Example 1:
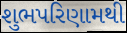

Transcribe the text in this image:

શુભપરિણામથી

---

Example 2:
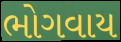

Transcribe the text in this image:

ભોગવાય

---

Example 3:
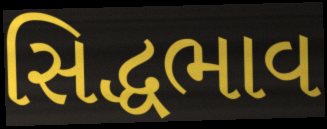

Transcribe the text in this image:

સિદ્ધભાવ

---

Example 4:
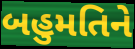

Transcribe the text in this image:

બહુમતિને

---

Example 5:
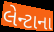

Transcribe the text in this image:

લેન્ટાના